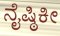
ನೈಷ್ಠಿಕೀ